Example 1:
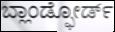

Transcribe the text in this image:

ಬ್ಲಾಂಡ್ಫೋರ್ಡ್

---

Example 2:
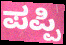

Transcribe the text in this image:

ಪಪ್ಪಿ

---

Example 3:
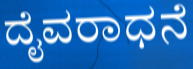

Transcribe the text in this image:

ದೈವರಾಧನೆ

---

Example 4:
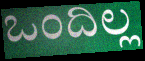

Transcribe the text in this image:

ಒಂದಿಲ್ಲ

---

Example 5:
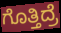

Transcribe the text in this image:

ಗೊತ್ತಿದ್ರೆ